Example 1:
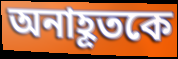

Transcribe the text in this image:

অনাহূতকে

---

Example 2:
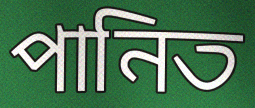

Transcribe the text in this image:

পানিত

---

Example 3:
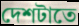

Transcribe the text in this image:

দেশটাতে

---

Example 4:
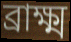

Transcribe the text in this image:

ব্রাক্ষ্ম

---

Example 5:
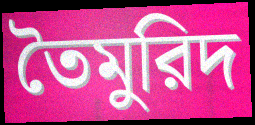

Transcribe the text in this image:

তৈমুরিদ